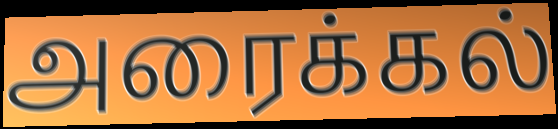
அரைக்கல்